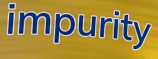
impurity